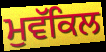
ਮੁਵੱਕਿਲ